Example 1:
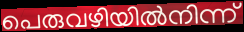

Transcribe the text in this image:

പെരുവഴിയിൽനിന്ന്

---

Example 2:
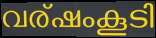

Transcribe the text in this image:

വര്ഷംകൂടി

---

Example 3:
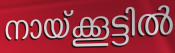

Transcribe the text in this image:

നായ്‌ക്കൂട്ടിൽ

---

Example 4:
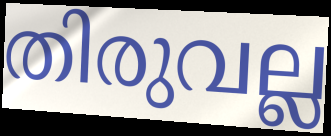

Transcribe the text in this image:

തിരുവല്ല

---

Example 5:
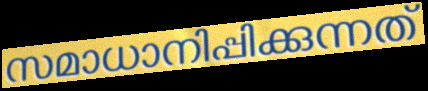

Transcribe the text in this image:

സമാധാനിപ്പിക്കുന്നത്